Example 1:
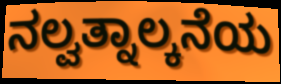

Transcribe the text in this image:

ನಲ್ವತ್ನಾಲ್ಕನೆಯ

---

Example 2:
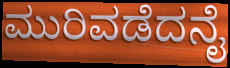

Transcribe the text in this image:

ಮುರಿವಡೆದನೈ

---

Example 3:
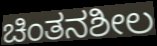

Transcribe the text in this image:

ಚಿಂತನಶೀಲ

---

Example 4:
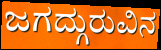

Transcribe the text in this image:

ಜಗದ್ಗುರುವಿನ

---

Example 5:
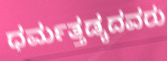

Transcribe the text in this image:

ಧರ್ಮತ್ತಡ್ಕದವರು